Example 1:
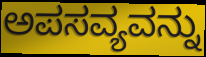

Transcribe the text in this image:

ಅಪಸವ್ಯವನ್ನು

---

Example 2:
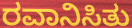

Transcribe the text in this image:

ರವಾನಿಸಿತು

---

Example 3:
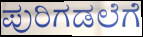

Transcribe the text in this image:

ಪುರಿಗಡಲೆಗೆ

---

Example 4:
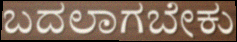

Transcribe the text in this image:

ಬದಲಾಗಬೇಕು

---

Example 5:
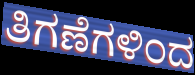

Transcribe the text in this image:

ತಿಗಣೆಗಳಿಂದ